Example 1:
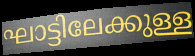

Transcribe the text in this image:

ഘാട്ടിലേക്കുള്ള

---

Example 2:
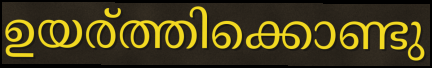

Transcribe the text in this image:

ഉയര്ത്തിക്കൊണ്ടു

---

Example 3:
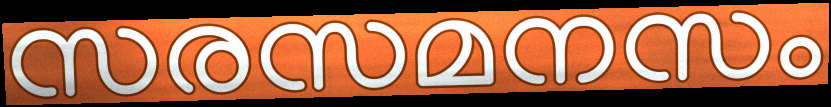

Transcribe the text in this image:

സരസമനസം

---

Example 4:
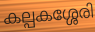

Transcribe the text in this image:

കല്പകശ്ശേരി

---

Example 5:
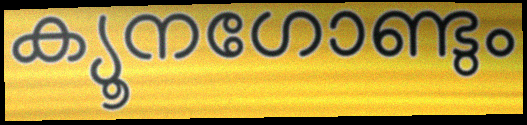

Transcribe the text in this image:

ക്യൂനഗോണ്ടും